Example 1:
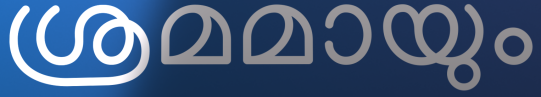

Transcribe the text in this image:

ശ്രമമായും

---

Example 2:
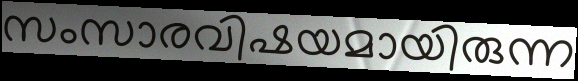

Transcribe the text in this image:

സംസാരവിഷയമായിരുന്ന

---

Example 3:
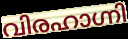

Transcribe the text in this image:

വിരഹാഗ്നി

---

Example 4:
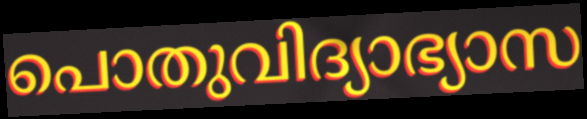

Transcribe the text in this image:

പൊതുവിദ്യാഭ്യാസ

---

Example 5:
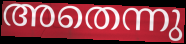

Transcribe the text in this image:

അതെന്നു